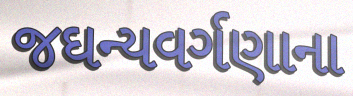
જઘન્યવર્ગણાના